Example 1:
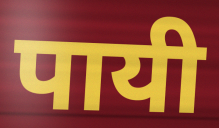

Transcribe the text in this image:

पायी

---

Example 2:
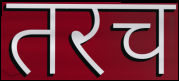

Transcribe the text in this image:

तरच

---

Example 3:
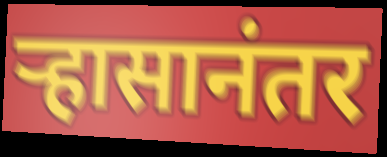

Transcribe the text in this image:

ऱ्हासानंतर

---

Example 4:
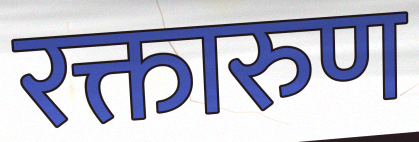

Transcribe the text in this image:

रक्तारुण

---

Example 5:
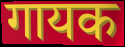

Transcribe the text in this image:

गायक